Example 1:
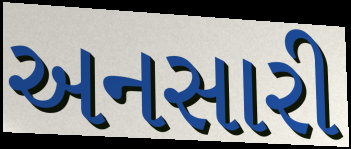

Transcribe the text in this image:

અનસારી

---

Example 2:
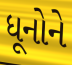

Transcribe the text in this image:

ધૂનોને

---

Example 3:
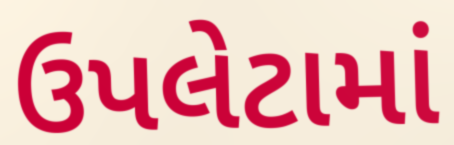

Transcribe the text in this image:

ઉપલેટામાં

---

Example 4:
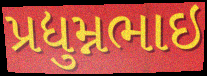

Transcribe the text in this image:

પ્રદ્યુમ્નભાઇ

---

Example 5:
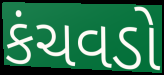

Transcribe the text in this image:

કંચવડો